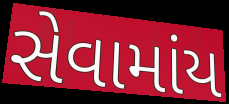
સેવામાંય